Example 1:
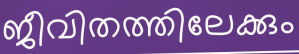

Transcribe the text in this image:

ജീവിതത്തിലേക്കും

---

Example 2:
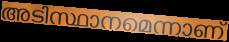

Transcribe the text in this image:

അടിസ്ഥാനമെന്നാണ്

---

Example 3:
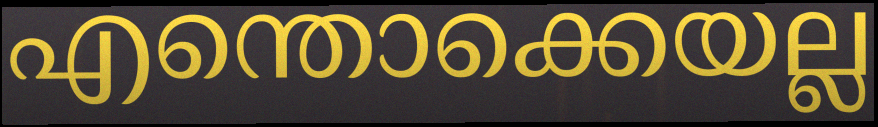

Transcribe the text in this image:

എന്തൊക്കെയല്ല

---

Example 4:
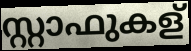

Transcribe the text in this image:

സ്റ്റാഫുകള്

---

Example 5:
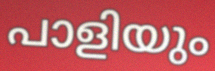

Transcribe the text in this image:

പാളിയും